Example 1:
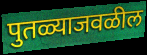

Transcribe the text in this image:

पुतळ्याजवळील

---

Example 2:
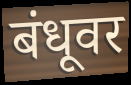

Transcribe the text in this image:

बंधूवर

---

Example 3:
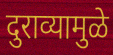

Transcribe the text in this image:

दुराव्यामुळे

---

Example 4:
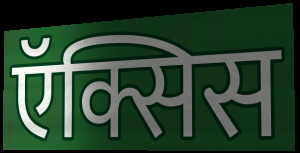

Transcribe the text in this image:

ऍक्सिस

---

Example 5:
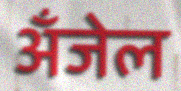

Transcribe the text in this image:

अँजेल